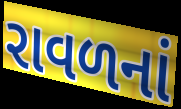
રાવળનાં